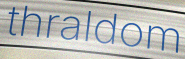
thraldom